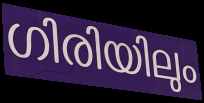
ഗിരിയിലും